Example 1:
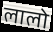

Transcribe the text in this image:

लालो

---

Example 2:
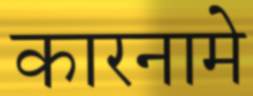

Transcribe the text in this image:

कारनामे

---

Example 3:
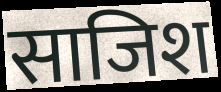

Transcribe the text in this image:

साजिश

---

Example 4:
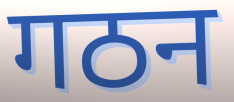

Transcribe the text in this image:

गठन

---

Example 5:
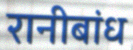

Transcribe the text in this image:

रानीबांध